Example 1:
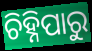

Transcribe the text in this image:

ଚିହ୍ନିପାରୁ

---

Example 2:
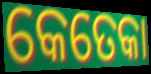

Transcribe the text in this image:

କେତେକା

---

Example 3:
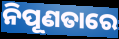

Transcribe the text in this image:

ନିପୂଣତାରେ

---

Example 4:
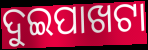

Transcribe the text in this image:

ଦୁଇପାଖଟା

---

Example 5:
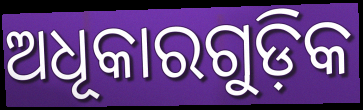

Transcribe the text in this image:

ଅଧୂକାରଗୁଡ଼ିକ